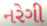
નરેગી